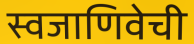
स्वजाणिवेची